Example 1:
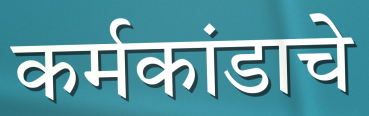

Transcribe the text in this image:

कर्मकांडाचे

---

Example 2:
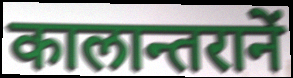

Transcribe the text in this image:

कालान्तरानें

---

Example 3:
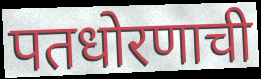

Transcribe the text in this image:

पतधोरणाची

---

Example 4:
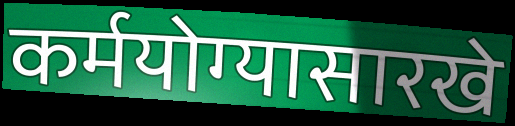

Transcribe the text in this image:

कर्मयोग्यासारखे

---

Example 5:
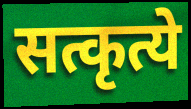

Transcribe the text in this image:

सत्कृत्ये